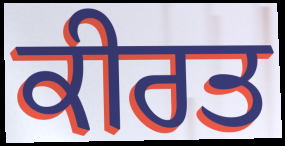
ਕੀਰਤ